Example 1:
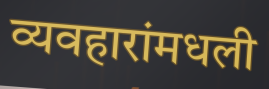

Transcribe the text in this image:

व्यवहारांमधली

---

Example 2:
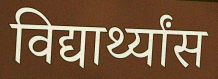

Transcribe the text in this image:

विद्यार्थ्यांस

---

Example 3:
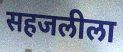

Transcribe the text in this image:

सहजलीला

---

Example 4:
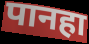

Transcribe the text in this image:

पानहा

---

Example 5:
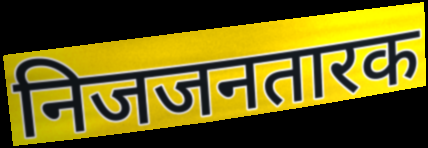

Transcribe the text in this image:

निजजनतारक